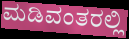
ಮಡಿವಂತರಲ್ಲಿ